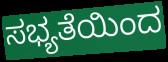
ಸಭ್ಯತೆಯಿಂದ